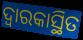
ଦ୍ୱାରକାସ୍ଥିତ